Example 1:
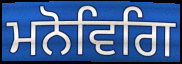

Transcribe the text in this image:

ਮਨੋਵਿਗਿ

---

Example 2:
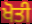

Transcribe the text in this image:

ਖੋਤੀ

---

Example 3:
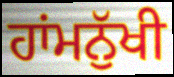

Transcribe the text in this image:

ਹਾਂਮਨੁੱਖੀ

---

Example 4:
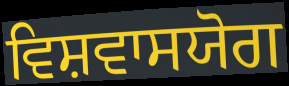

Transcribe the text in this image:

ਵਿਸ਼ਵਾਸਯੋਗ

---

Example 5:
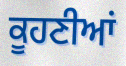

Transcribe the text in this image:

ਕੂਹਣੀਆਂ